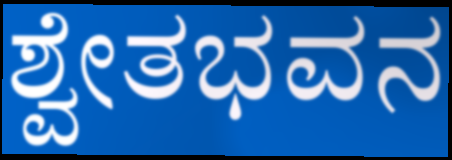
ಶ್ವೇತಭವನ